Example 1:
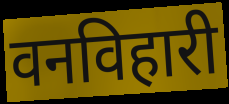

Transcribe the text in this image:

वनविहारी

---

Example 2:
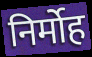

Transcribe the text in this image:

निर्मोह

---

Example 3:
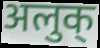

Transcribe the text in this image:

अलुक्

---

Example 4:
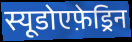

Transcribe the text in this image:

स्यूडोएफ़ेड्रिन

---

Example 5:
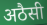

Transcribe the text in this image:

अठैसी